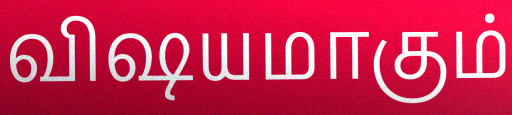
விஷயமாகும்